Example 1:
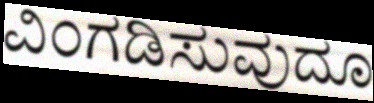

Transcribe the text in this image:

ವಿಂಗಡಿಸುವುದೂ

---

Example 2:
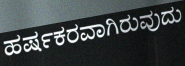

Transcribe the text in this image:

ಹರ್ಷಕರವಾಗಿರುವುದು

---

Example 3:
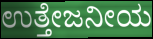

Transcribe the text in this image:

ಉತ್ತೇಜನೀಯ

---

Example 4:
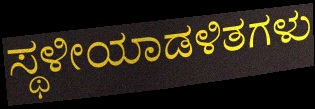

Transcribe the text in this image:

ಸ್ಥಳೀಯಾಡಳಿತಗಳು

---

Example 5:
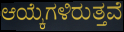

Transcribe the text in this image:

ಆಯ್ಕೆಗಳಿರುತ್ತವೆ